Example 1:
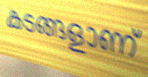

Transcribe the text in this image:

കടങ്ങളാണ്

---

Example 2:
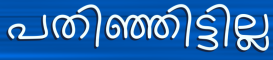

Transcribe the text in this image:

പതിഞ്ഞിട്ടില്ല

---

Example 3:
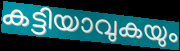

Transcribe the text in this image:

കട്ടിയാവുകയും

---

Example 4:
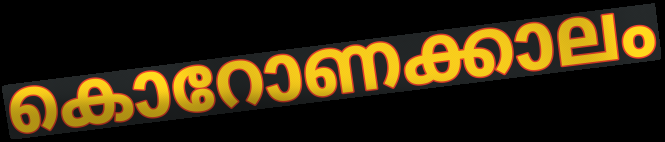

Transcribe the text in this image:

കൊറോണക്കാലം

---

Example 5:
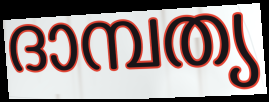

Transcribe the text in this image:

ദാമ്പത്യ